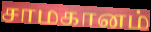
சாமகானம்